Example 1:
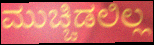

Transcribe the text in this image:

ಮುಚ್ಚಿಡಲಿಲ್ಲ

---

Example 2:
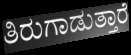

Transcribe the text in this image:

ತಿರುಗಾಡುತ್ತಾರೆ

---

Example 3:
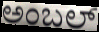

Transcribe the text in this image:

ಅಂಬಲ್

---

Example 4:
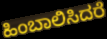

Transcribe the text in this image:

ಹಿಂಬಾಲಿಸಿದರೆ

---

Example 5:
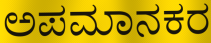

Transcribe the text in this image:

ಅಪಮಾನಕರ